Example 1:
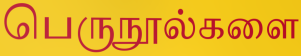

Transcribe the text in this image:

பெருநூல்களை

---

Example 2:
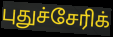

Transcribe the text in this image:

புதுச்சேரிக்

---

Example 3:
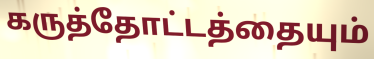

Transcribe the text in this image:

கருத்தோட்டத்தையும்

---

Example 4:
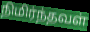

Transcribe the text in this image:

நிமிர்ந்தவள்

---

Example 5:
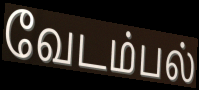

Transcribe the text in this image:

வேடம்பல்